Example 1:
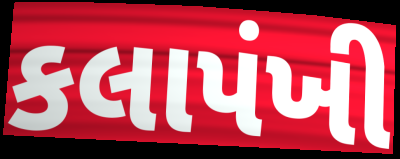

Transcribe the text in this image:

કલાપંખી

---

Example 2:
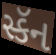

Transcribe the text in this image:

સ્કૅન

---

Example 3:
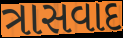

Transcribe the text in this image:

ત્રાસવાદ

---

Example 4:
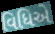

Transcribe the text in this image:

વિધિએ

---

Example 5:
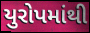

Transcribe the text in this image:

યુરોપમાંથી